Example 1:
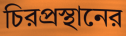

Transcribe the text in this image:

চিরপ্রস্থানের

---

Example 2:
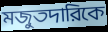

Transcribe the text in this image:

মজুতদারিকে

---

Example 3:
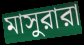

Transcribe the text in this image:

মাসুরারা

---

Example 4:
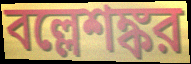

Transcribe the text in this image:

বল্লেশঙ্কর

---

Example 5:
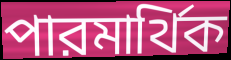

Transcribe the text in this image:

পারমার্থিক